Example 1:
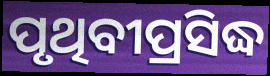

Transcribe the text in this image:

ପୃଥିବୀପ୍ରସିଦ୍ଧ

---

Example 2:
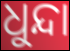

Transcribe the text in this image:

ଧୁନ୍ଦା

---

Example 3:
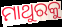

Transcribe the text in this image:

ମାଥୁରକୁ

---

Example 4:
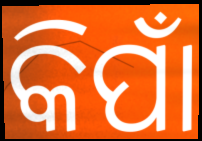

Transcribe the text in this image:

କିପାଁ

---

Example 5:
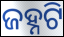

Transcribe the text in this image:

ଜହ୍ନଟି